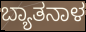
ಬ್ಯಾತನಾಳ